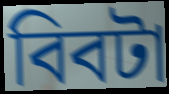
বিবটা